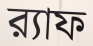
র‍্যাফ